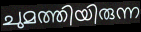
ചുമത്തിയിരുന്ന